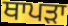
ਥਾਪੜਾ